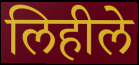
लिहीले